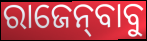
ରାଜେନ୍‌ବାବୁ